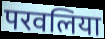
परवलिया